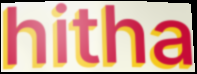
hitha